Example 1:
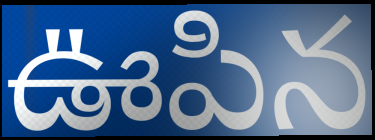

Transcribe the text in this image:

ఊపిన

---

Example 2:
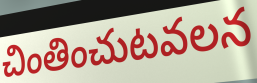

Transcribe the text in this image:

చింతించుటవలన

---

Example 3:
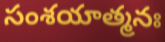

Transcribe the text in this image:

సంశయాత్మనః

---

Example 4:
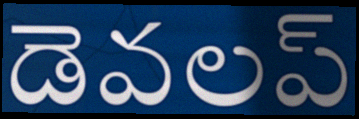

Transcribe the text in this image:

డెవలప్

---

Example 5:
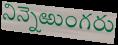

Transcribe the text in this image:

నిన్నెఱుంగరు